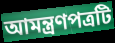
আমন্ত্রণপত্রটি